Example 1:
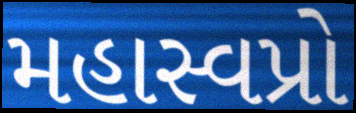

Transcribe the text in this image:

મહાસ્વપ્રો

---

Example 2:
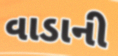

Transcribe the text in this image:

વાડાની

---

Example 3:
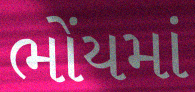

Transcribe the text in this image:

ભોંયમાં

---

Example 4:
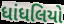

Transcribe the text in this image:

ધાંધલિયો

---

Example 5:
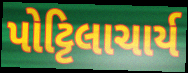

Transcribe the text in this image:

પોટ્ટિલાચાર્ય